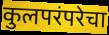
कुलपरंपरेचा